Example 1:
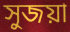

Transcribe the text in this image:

সুজয়া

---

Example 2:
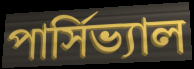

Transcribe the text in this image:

পার্সিভ্যাল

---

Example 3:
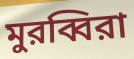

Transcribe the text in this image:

মুরব্বিরা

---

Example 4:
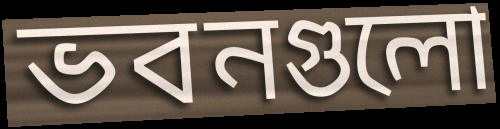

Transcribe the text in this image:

ভবনগুলো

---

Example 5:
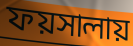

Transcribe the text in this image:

ফয়সালায়